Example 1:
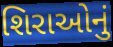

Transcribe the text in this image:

શિરાઓનું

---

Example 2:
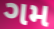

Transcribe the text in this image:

ગમ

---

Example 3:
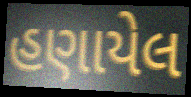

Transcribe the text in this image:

હણાયેલ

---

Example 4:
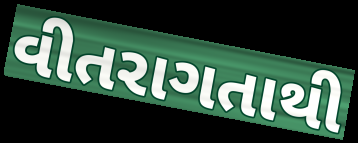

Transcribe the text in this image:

વીતરાગતાથી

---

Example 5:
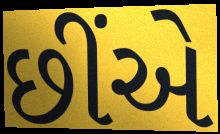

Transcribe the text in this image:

છીંએ